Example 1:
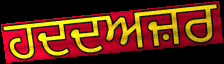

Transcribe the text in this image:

ਹਦਦਅਜ਼ਰ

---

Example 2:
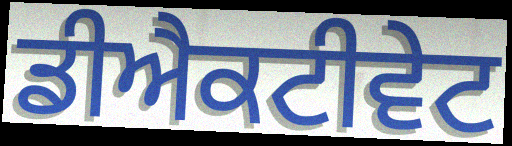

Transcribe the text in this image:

ਡੀਐਕਟੀਵੇਟ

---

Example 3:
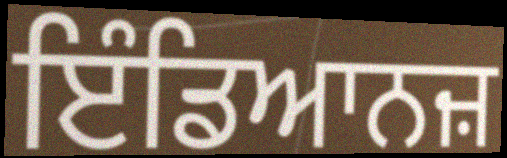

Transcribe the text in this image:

ਇੰਡਿਆਨਜ਼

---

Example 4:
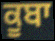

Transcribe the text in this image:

ਕੂਬਾ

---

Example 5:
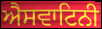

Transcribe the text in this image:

ਐਸਵਾਟਿਨੀ